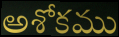
అశోకము